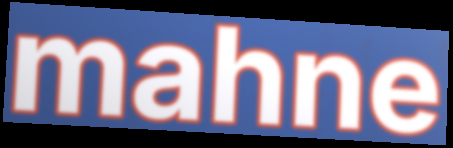
mahne